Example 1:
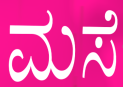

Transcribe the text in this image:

ಮಸೆ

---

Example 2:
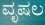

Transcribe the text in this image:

ವೃಷಲ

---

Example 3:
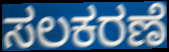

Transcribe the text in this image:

ಸಲಕರಣೆ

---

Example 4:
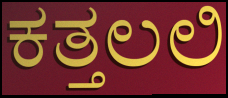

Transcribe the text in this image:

ಕತ್ತಲಲಿ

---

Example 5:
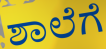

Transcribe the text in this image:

ಶಾಲೆಗೆ